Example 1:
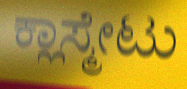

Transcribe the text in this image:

ಕ್ಲಾಸ್ಮೇಟು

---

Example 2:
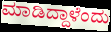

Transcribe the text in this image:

ಮಾಡಿದ್ದಾಳೆಂದು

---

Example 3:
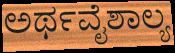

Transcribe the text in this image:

ಅರ್ಥವೈಶಾಲ್ಯ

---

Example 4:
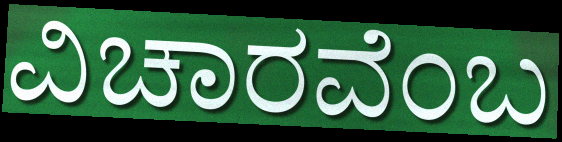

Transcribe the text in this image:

ವಿಚಾರವೆಂಬ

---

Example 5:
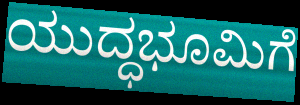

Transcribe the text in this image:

ಯುದ್ಧಭೂಮಿಗೆ